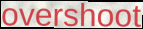
overshoot